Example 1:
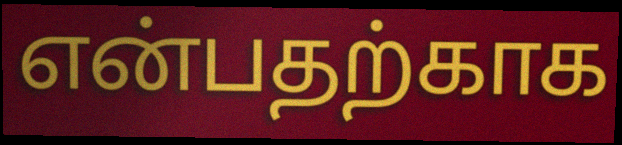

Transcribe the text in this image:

என்பதற்காக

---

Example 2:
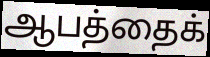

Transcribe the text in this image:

ஆபத்தைக்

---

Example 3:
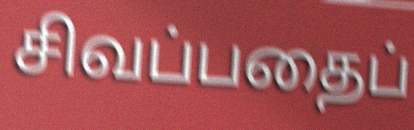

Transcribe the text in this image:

சிவப்பதைப்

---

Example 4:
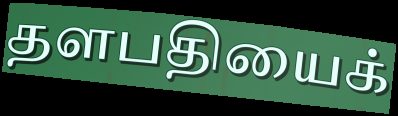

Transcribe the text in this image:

தளபதியைக்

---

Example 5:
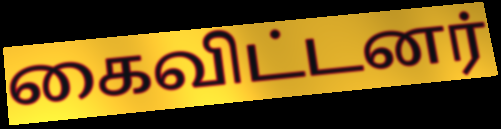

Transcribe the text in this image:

கைவிட்டனர்